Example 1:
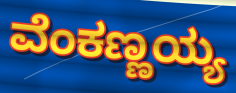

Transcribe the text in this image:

ವೆಂಕಣ್ಣಯ್ಯ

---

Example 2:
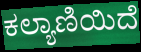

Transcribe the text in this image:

ಕಲ್ಯಾಣಿಯಿದೆ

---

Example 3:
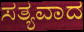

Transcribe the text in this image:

ಸತ್ಯವಾದ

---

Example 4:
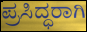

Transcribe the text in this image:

ಪ್ರಸಿದ್ಧರಾಗಿ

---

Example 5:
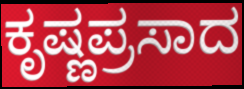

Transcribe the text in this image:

ಕೃಷ್ಣಪ್ರಸಾದ